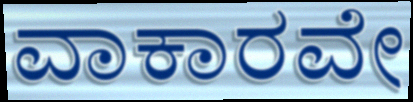
ವಾಕಾರವೇ